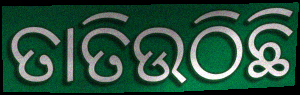
ତାତିଉଠିଛି